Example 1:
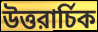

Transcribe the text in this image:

উত্তরার্চিক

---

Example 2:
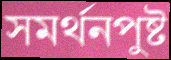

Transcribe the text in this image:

সমর্থনপুষ্ট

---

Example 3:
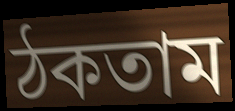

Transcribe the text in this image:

ঠকতাম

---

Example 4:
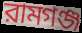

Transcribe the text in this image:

রামগঞ্জ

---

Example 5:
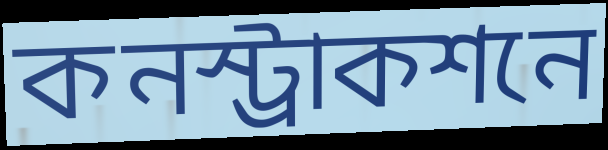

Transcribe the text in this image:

কনস্ট্রাকশনে